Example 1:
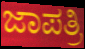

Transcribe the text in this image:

ಜಾಪತ್ರಿ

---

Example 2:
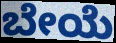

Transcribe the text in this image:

ಬೇಯೆ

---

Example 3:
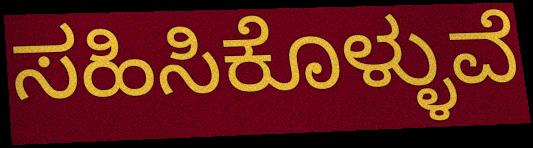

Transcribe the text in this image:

ಸಹಿಸಿಕೊಳ್ಳುವೆ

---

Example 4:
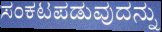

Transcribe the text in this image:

ಸಂಕಟಪಡುವುದನ್ನು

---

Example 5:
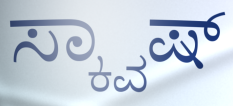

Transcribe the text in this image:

ಸ್ಕ್ವಾಷ್